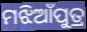
ମଝିଆଁପୁତ୍ର